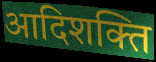
आदिशक्ति